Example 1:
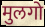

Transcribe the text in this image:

मुलगो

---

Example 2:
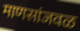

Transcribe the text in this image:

माणसांजवळ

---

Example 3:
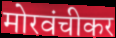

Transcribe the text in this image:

मोरवंचीकर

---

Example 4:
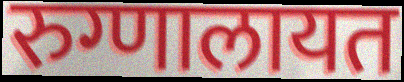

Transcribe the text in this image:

रुग्णालायत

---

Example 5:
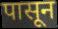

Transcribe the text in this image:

पासून